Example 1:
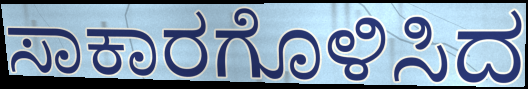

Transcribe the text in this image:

ಸಾಕಾರಗೊಳಿಸಿದ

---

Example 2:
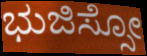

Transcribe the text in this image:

ಭುಜಿಸ್ಸೋ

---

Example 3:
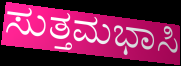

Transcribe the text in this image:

ಸುತ್ತಮಭಾಸಿ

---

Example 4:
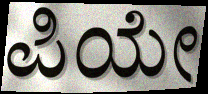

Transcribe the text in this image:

ಪಿಯೇ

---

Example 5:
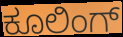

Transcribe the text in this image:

ಕೂಲಿಂಗ್